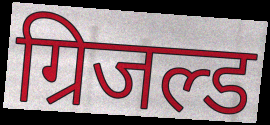
ग्रिजल्ड